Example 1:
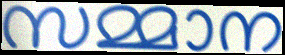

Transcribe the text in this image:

സമ്മാന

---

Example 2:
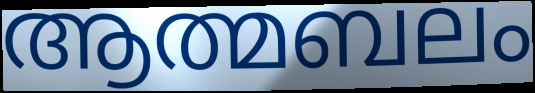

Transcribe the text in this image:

ആത്മബലം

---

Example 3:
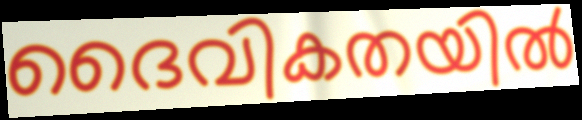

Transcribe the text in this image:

ദൈവികതയിൽ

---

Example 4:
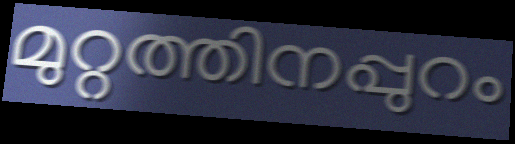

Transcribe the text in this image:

മുറ്റത്തിനപ്പുറം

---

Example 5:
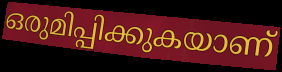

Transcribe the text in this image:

ഒരുമിപ്പിക്കുകയാണ്